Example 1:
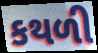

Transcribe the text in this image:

કથળી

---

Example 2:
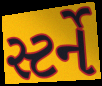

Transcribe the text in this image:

સ્ટર્ને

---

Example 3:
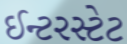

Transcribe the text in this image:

ઈન્ટરસ્ટેટ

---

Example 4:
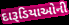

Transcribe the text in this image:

દારૂડિયાઓની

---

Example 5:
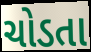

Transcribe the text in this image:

ચોડતા